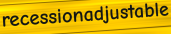
recessionadjustable